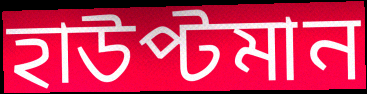
হাউপ্টমান